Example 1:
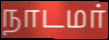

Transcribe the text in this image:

நாடமர்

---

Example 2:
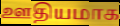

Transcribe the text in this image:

ஊதியமாக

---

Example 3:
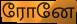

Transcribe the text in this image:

ரோனே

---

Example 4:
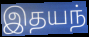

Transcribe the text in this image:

இதயந்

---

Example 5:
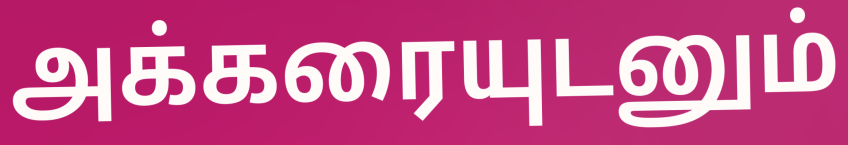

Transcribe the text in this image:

அக்கரையுடனும்